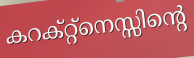
കറക്റ്റ്നെസ്സിന്റെ